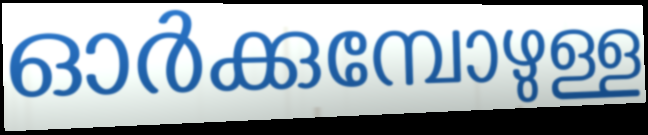
ഓർക്കുമ്പോഴുള്ള